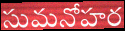
సుమనోహర